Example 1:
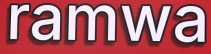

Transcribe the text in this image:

ramwa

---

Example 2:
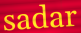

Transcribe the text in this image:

sadar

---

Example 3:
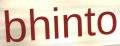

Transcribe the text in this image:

bhinto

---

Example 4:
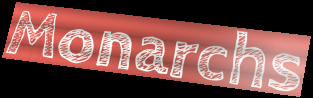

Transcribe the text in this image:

Monarchs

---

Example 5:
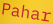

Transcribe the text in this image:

Pahar